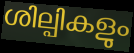
ശില്പികളും